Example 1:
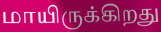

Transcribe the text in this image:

மாயிருக்கிறது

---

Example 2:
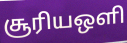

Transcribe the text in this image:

சூரியஒளி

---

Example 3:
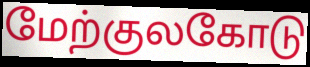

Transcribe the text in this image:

மேற்குலகோடு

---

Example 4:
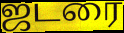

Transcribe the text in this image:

ஜடரை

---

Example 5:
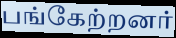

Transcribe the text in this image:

பங்கேற்றனர்